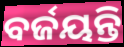
ବର୍ଜୟନ୍ତି